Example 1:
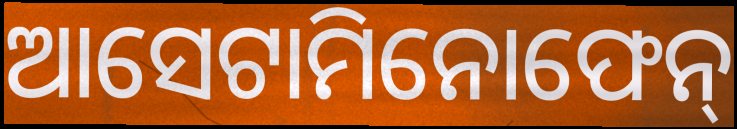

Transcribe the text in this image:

ଆସେଟାମିନୋଫେନ୍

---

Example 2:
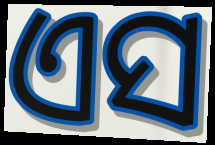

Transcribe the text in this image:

ଏସ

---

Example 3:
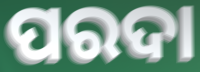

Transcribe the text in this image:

ପରଦା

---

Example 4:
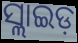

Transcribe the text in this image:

ସ୍ଲାଇଡ଼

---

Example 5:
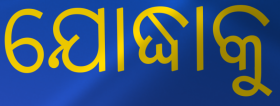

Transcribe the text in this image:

ଯୋଦ୍ଧାକୁ